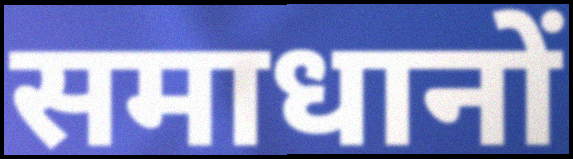
समाधानों